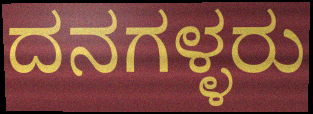
ದನಗಳ್ಳರು